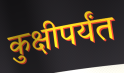
कुक्षीपर्यंत